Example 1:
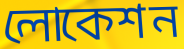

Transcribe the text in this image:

লোকেশন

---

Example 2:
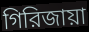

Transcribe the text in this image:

গিরিজায়া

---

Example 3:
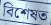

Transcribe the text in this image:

বিশেষত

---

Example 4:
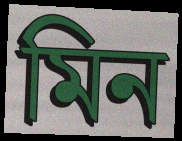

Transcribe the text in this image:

মিন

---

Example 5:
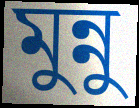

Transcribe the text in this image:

মুন্নু